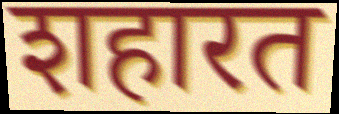
शहारत